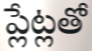
ప్లేట్లతో